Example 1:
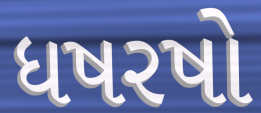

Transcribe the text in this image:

ધષરષો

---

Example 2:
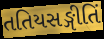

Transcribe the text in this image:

તતિયસઙ્ગીતિં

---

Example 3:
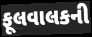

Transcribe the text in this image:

ફૂલવાલકની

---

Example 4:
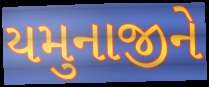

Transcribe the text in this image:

યમુનાજીને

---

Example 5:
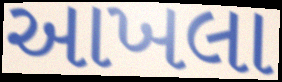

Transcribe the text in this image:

આખલા